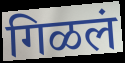
गिळलं